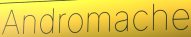
Andromache